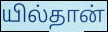
யில்தான்